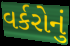
વર્કરોનું